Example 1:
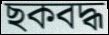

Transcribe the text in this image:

ছকবদ্ধ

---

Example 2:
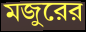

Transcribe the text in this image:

মজুরের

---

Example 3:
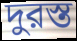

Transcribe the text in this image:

দুরস্ত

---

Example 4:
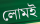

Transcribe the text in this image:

লোমই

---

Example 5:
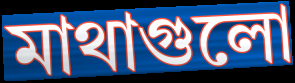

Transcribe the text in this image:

মাথাগুলো